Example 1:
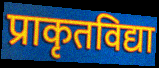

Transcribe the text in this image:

प्राकृतविद्या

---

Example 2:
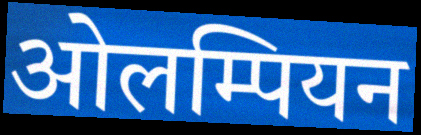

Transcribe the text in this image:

ओलम्पियन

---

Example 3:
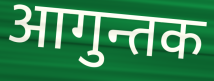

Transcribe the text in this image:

आगुन्तक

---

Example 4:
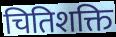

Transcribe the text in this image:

चितिशक्ति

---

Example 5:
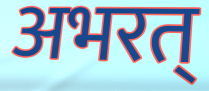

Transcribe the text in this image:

अभरत्